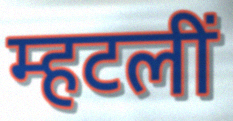
म्हटलीं